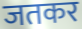
जतकर